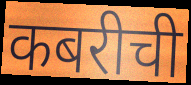
कबरीची